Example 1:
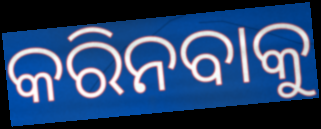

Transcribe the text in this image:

କରିନବାକୁ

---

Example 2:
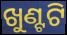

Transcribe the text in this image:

ଖୁଣ୍ଟଟି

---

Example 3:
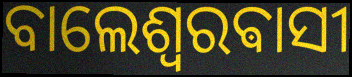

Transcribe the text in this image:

ବାଲେଶ୍ଵରଵାସୀ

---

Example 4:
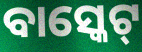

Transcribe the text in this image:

ବାସ୍କେଟ୍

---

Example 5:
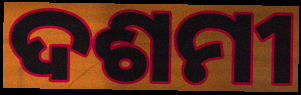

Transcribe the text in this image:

ଦଶମୀ